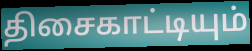
திசைகாட்டியும்